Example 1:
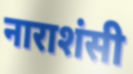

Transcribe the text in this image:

नाराशंसी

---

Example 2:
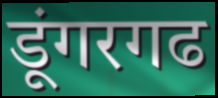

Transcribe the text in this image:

डूंगरगढ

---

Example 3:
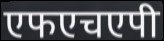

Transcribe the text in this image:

एफएचएपी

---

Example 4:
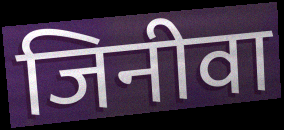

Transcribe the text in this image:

जिनीवा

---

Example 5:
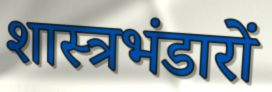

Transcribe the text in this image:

शास्त्रभंडारों